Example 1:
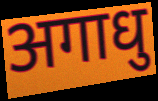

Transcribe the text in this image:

अगाधु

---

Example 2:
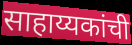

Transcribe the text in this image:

साहाय्यकांची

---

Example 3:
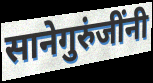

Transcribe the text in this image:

सानेगुरुंजींनी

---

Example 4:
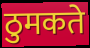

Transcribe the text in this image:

ठुमकते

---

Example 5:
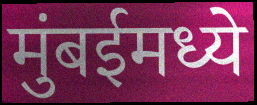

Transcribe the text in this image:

मुंबईमध्ये